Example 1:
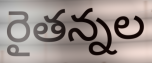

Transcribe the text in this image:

రైతన్నల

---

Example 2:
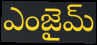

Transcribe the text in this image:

ఎంజైమ్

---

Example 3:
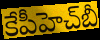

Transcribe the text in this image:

కేపీహెచ్‌బీ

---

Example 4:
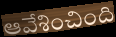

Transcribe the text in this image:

ఆవేశించింది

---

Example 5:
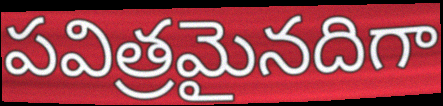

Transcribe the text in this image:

పవిత్రమైనదిగా